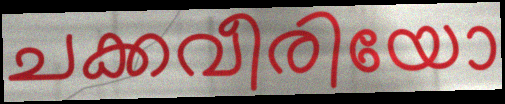
ചക്കവീരിയോ